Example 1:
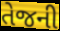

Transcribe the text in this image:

તેજની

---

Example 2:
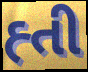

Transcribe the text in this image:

હ્તી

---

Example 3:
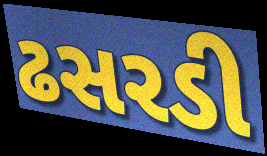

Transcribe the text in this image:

ઢસરડી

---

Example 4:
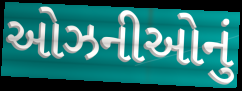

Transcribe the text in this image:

ઓઝનીઓનું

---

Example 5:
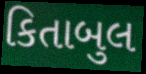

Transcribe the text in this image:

કિતાબુલ